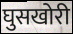
घुसखोरी